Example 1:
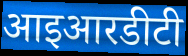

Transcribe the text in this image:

आइआरडीटी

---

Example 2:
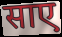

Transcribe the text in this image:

साए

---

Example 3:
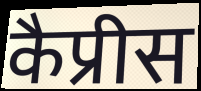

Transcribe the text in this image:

कैप्रीस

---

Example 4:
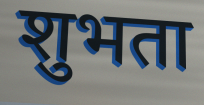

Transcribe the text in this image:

शुभता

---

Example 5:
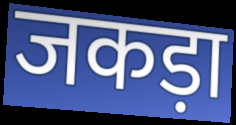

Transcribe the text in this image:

जकड़ा